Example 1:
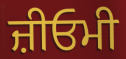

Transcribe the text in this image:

ਜ਼ੀਓਮੀ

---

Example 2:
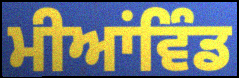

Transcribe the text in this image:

ਮੀਆਂਵਿੰਡ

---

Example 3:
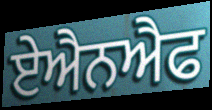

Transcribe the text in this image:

ਏਐਨਐਫ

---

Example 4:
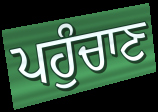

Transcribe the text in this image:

ਪਹੁੰਚਾਣ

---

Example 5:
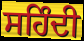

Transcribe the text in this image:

ਸਹਿੰਦੀ